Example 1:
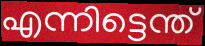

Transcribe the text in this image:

എന്നിട്ടെന്ത്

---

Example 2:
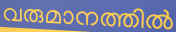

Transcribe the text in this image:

വരുമാനത്തിൽ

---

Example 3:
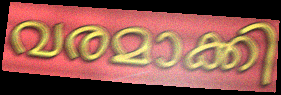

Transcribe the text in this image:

വരമാക്കി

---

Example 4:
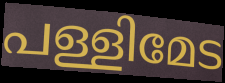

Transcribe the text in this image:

പള്ളിമേട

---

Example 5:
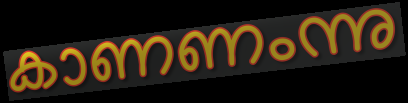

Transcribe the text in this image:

കാണണംന്നു